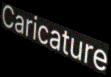
Caricature